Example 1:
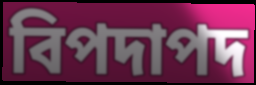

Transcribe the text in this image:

বিপদাপদ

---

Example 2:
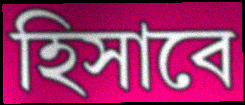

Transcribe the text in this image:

হিসাবে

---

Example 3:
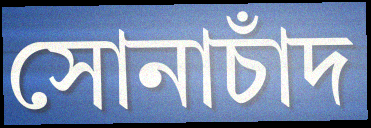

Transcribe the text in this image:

সোনাচাঁদ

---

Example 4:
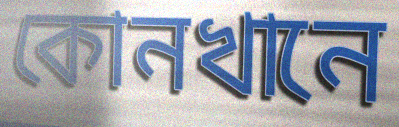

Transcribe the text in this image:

কোনখানে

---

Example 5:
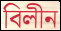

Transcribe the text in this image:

বিলীন